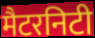
मैटरनिटी